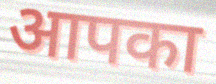
आपका